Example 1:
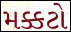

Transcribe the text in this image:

મક્કટો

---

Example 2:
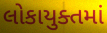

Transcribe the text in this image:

લોકાયુક્તમાં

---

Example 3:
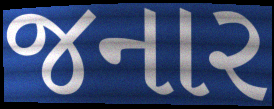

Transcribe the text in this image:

જનાર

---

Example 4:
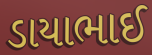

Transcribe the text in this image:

ડાયાભાઈ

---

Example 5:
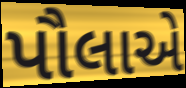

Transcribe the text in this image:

પૌલાએ